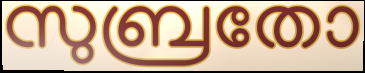
സുബ്രതോ